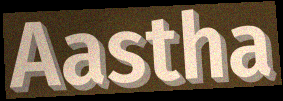
Aastha